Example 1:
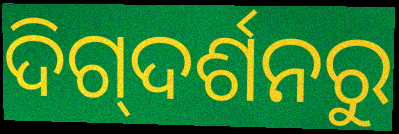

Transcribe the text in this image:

ଦିଗ୍‌ଦର୍ଶନରୁ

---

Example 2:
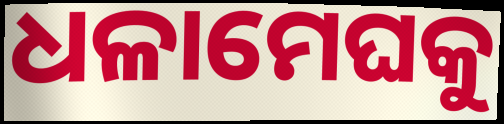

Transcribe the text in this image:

ଧଳାମେଘକୁ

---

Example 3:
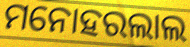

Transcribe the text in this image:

ମନୋହରଲାଲ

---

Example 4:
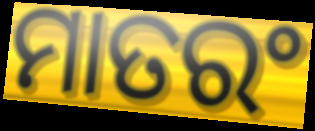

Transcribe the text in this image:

ମାତରଂ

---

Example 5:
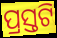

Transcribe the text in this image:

ପ୍ରସ୍ତଟି